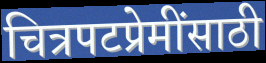
चित्रपटप्रेमींसाठी